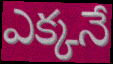
ఎక్కనే